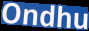
Ondhu